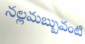
నల్లమబ్బువంటి